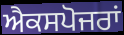
ਐਕਸਪੋਜਰਾਂ